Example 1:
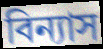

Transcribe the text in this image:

বিন্যাস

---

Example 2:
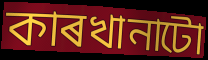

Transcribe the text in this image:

কাৰখানাটো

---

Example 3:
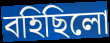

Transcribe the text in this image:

বহিছিলো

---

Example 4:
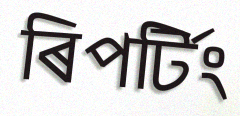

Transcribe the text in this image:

ৰিপৰ্টিং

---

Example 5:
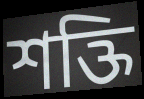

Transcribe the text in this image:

শক্তি